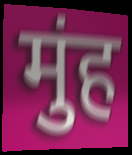
मुंह